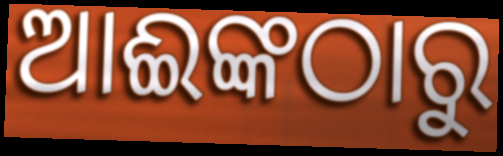
ଆଈଙ୍କଠାରୁ